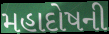
મહાદોષની